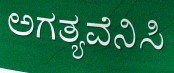
ಅಗತ್ಯವೆನಿಸಿ